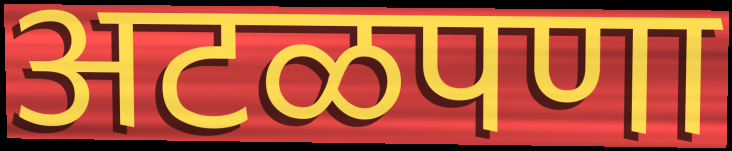
अटळपणा